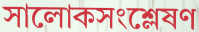
সালোকসংশ্লেষণ